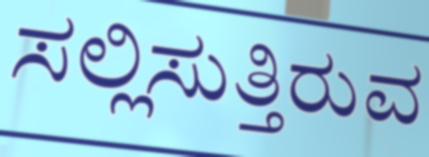
ಸಲ್ಲಿಸುತ್ತಿರುವ